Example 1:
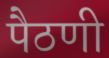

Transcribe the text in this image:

पैठणी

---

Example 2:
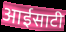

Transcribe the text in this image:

आईसाटी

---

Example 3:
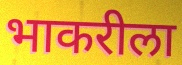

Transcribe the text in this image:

भाकरीला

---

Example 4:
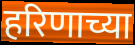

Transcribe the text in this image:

हरिणाच्या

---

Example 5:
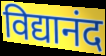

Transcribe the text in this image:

विद्यानंद